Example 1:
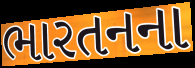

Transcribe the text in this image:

ભારતનના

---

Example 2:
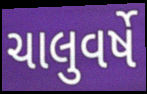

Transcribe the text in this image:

ચાલુવર્ષે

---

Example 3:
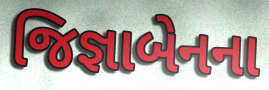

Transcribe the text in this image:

જિજ્ઞાબેનના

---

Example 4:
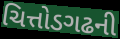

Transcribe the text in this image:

ચિત્તોડગઢની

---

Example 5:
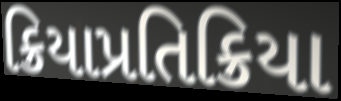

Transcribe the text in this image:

ક્રિયાપ્રતિક્રિયા